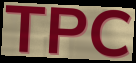
TPC